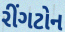
રીંગટોન